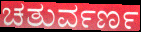
ಚತುರ್ವರ್ಣ